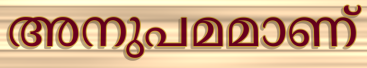
അനുപമമാണ്